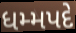
ધમ્મપદે